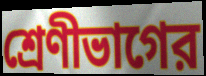
শ্রেণীভাগের